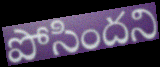
పోసిందని